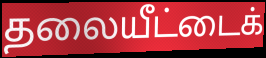
தலையீட்டைக்